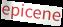
epicene